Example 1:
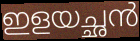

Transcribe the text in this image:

ഇളയച്ഛൻ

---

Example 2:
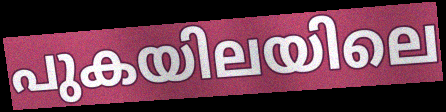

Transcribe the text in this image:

പുകയിലയിലെ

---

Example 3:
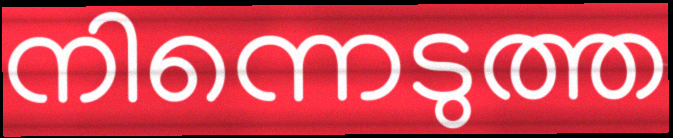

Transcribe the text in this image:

നിന്നെടുത്ത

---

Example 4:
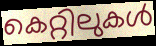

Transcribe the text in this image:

കെറ്റിലുകൾ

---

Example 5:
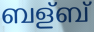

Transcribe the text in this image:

ബള്ബ്